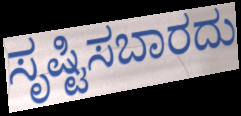
ಸೃಷ್ಟಿಸಬಾರದು